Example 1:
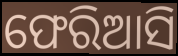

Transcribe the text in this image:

ଫେରିଆସି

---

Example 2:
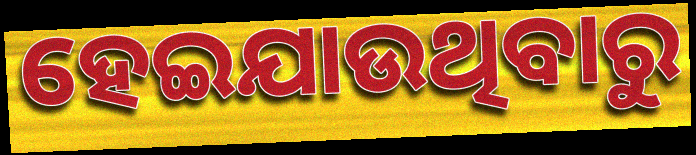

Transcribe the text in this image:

ହେଇଯାଉଥିବାରୁ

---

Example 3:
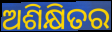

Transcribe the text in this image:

ଅଶିକ୍ଷିତର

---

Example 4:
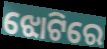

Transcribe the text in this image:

ଝୋଟିରେ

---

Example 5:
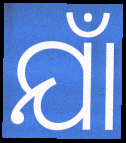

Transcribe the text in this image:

ଯାଁ